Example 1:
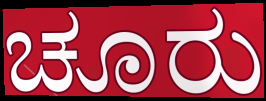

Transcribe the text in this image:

ಚೂರು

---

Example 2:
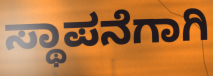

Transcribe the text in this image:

ಸ್ಥಾಪನೆಗಾಗಿ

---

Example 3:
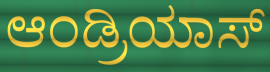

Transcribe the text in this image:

ಆಂಡ್ರಿಯಾಸ್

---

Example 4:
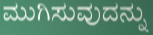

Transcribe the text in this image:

ಮುಗಿಸುವುದನ್ನು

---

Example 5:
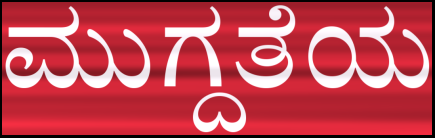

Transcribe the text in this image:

ಮುಗ್ದತೆಯ